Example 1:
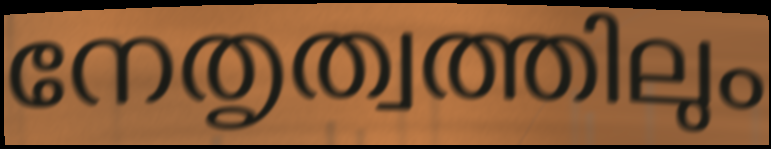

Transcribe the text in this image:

നേതൃത്വത്തിലും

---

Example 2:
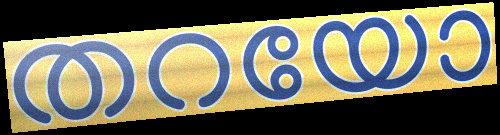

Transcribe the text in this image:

തറയോ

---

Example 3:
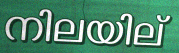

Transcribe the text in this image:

നിലയില്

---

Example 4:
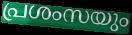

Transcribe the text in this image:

പ്രശംസയും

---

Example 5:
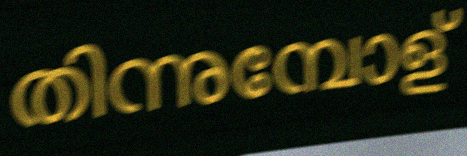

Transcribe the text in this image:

തിന്നുമ്പോള്